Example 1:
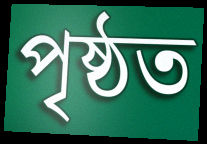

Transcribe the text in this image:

পৃষ্ঠত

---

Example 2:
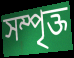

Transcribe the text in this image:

সম্পৃক্ত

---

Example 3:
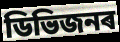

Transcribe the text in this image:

ডিভিজনৰ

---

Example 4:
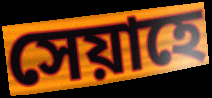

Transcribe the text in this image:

সেয়াহে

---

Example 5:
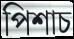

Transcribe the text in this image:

পিশাচ